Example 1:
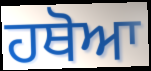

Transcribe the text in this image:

ਹਥੋਆ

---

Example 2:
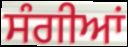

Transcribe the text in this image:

ਸੰਗੀਆਂ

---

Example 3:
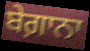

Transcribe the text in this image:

ਬੇਗ਼ਾਨਾ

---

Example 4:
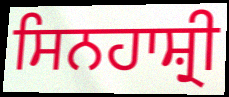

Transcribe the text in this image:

ਸਿਨਹਾਸ਼੍ਰੀ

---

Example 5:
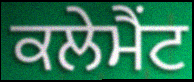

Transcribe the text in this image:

ਕਲੇਮੈਂਟ